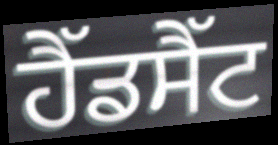
ਹੈੱਡਸੈੱਟ